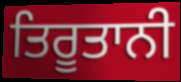
ਤਿਰੂਤਾਨੀ